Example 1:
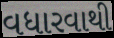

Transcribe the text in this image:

વધારવાથી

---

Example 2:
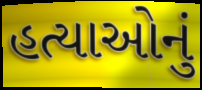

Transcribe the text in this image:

હત્યાઓનું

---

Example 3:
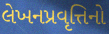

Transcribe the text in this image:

લેખનપ્રવૃત્તિનો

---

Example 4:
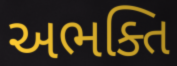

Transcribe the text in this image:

અભક્તિ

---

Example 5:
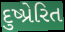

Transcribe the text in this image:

દુષ્પ્રેરિત